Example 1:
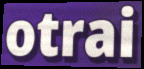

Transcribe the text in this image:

otrai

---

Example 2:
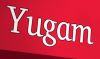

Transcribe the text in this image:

Yugam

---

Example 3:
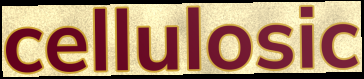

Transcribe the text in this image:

cellulosic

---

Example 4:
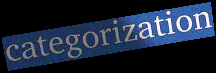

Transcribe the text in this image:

categorization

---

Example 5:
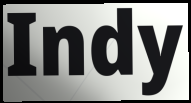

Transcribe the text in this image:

Indy